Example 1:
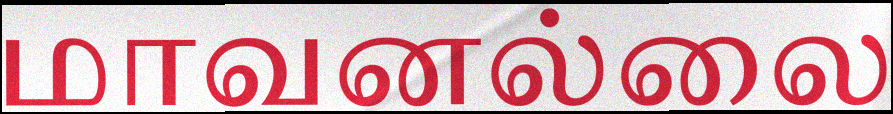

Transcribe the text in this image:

மாவனல்லை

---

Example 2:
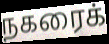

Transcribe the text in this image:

நகரைக்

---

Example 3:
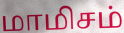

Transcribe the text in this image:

மாமிசம்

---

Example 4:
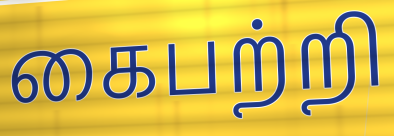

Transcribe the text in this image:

கைபற்றி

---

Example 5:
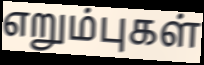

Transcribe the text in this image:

எறும்புகள்